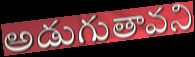
అడుగుతావని